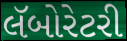
લૅબોરેટરી